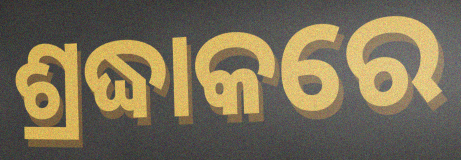
ଶ୍ରଦ୍ଧାକରେ